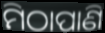
ମିଠାପାଣି